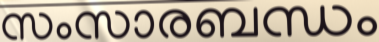
സംസാരബന്ധം